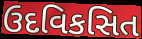
ઉદવિકસિત